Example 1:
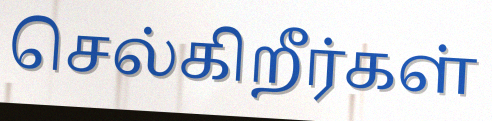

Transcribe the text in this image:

செல்கிறீர்கள்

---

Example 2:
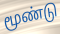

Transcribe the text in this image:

மூண்டு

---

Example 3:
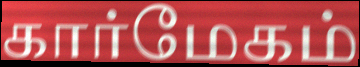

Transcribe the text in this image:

கார்மேகம்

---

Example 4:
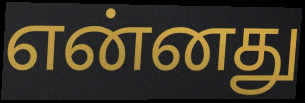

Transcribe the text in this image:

என்னது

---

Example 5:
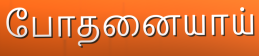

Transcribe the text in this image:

போதனையாய்